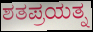
ಶತಪ್ರಯತ್ನ